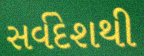
સર્વદેશથી